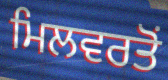
ਮਿਲਵਰਤੋਂ